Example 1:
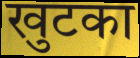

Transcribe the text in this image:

खुटका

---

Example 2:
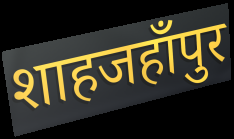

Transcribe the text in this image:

शाहजहाँपुर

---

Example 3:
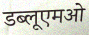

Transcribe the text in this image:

डब्लूएमओ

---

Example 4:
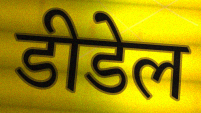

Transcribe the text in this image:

डीडेल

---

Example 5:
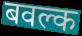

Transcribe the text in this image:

बवल्क